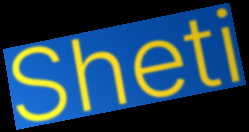
Sheti